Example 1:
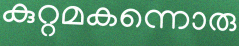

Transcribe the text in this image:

കുറ്റമകന്നൊരു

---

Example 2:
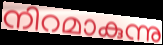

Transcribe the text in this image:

നിറമാകുന്നു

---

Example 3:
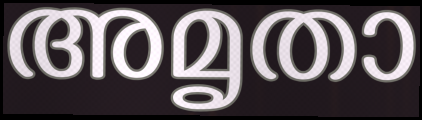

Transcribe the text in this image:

അമൃതാ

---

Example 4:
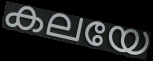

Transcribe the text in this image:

കലയേ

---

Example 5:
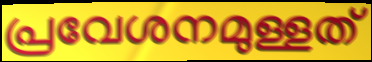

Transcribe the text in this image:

പ്രവേശനമുള്ളത്